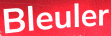
Bleuler